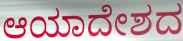
ಆಯಾದೇಶದ